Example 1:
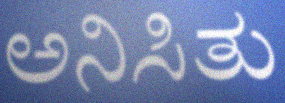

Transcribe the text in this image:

ಅನಿಸಿತು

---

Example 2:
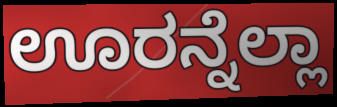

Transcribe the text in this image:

ಊರನ್ನೆಲ್ಲಾ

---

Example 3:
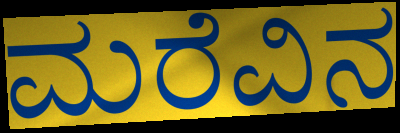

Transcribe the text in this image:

ಮರೆವಿನ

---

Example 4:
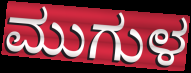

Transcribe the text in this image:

ಮುಗುಳ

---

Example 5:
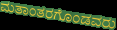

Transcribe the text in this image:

ಮತಾಂತರಗೊಂಡವರು